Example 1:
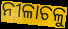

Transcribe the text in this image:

ନୀଳାଚଳୁ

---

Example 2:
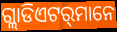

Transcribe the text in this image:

ଗ୍ଲାଡିଏଟର୍‍ମାନେ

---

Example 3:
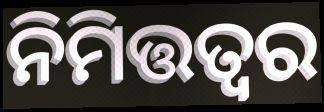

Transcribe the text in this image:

ନିମିତ୍ତତ୍ଵର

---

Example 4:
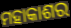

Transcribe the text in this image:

ମହାକାଶର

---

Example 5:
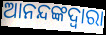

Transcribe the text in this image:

ଆନନ୍ଦଙ୍କଦ୍ୱାରା